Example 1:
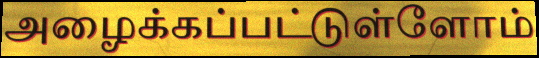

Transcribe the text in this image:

அழைக்கப்பட்டுள்ளோம்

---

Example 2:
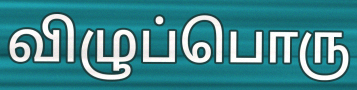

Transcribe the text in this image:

விழுப்பொரு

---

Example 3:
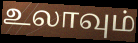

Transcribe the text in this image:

உலாவும்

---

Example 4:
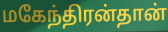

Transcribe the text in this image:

மகேந்திரன்தான்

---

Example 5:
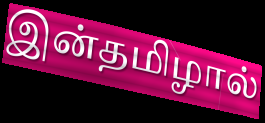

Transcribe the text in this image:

இன்தமிழால்